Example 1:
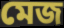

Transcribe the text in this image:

মেজ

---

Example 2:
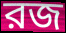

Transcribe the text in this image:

রজ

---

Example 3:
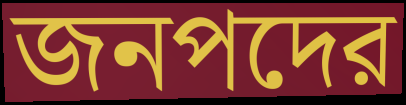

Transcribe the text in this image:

জনপদের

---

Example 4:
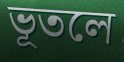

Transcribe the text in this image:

ভূতলে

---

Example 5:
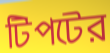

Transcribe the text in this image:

টিপটের